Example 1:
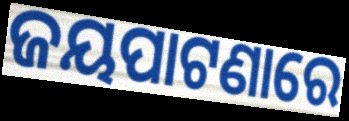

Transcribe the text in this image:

ଜୟପାଟଣାରେ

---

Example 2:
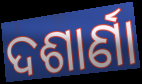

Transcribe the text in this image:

ଦଶାର୍ଣା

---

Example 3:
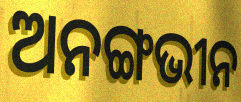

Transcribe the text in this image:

ଅନଙ୍ଗଭୀନ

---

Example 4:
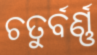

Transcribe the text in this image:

ଚତୁର୍ବର୍ଣ୍ଣ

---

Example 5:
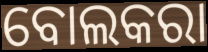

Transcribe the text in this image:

ବୋଲକରା